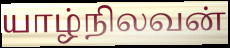
யாழ்நிலவன்